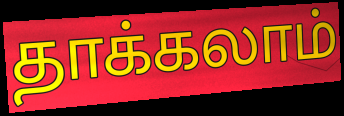
தாக்கலாம்